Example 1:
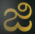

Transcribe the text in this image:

జి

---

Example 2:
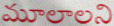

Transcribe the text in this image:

మూలాలని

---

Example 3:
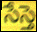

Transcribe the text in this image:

సేస్తె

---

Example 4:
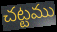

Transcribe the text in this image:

చట్టము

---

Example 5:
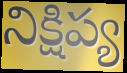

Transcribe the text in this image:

నిక్షిప్య